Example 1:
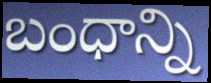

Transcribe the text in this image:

బంధాన్ని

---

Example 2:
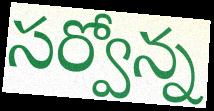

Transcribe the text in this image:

సర్వోన్న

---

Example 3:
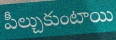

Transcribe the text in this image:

పీల్చుకుంటాయి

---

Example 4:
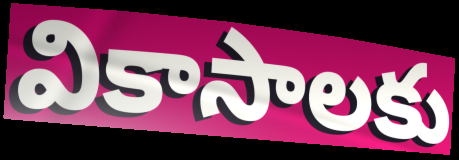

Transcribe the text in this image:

వికాసాలకు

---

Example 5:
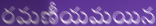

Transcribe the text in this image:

రమణీయమయిన